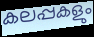
കലപ്പകളും